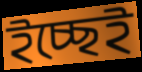
ইচ্ছেই